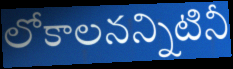
లోకాలనన్నిటినీ